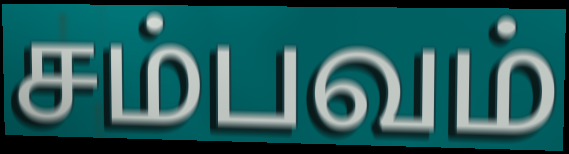
சம்பவம்